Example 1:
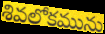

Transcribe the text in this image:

శివలోకమును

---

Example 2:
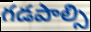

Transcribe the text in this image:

గడపాల్సి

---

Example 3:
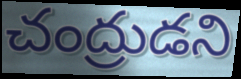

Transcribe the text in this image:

చంద్రుడని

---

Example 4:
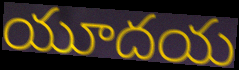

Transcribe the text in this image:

యూదయ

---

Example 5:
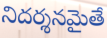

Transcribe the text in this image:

నిదర్శనమైతే